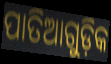
ପାତିଆଗୁଡ଼ିକ